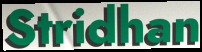
Stridhan